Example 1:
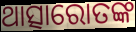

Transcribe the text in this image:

ଥାତ୍ସାରୋତଙ୍କ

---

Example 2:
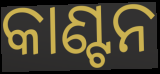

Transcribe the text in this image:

କାଣ୍ଟନ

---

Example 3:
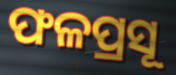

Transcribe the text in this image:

ଫଳପ୍ରସୂ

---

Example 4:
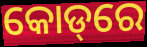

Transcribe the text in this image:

କୋଡ୍‌ରେ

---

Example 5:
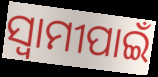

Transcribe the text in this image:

ସ୍ୱାମୀପାଇଁ